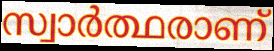
സ്വാർത്ഥരാണ്